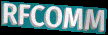
RFCOMM